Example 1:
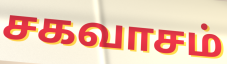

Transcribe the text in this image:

சகவாசம்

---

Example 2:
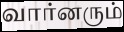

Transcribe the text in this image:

வார்னரும்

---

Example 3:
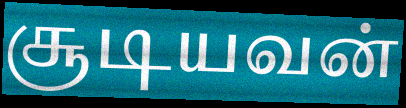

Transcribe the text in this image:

சூடியவன்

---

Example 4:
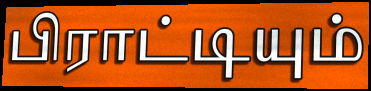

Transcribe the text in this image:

பிராட்டியும்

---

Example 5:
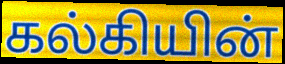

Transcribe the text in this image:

கல்கியின்